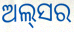
ଅଲ୍‌ସର